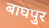
बाघपुर